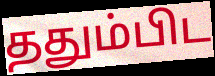
ததும்பிட